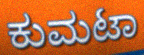
ಕುಮಟಾ